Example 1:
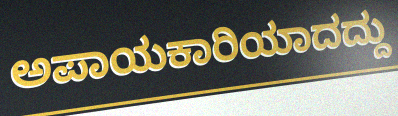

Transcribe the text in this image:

ಅಪಾಯಕಾರಿಯಾದದ್ದು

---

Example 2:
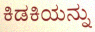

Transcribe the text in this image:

ಕಿಡಕಿಯನ್ನು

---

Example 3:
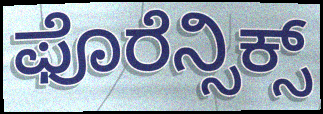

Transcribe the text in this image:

ಫೊರೆನ್ಸಿಕ್ಸ್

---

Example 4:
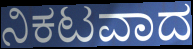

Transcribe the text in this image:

ನಿಕಟವಾದ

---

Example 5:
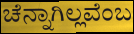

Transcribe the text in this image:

ಚೆನ್ನಾಗಿಲ್ಲವೆಂಬ